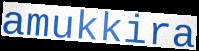
amukkira